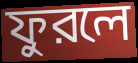
ফুরলে